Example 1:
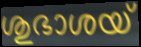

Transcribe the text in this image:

ശുഭാശയ്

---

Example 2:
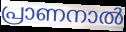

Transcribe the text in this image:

പ്രാണനാൽ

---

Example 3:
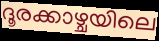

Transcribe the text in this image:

ദൂരക്കാഴ്ചയിലെ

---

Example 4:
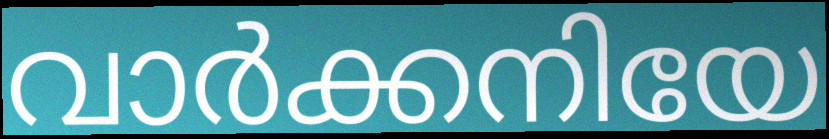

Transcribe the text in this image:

വാർക്കനിയേ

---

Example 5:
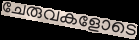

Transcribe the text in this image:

ചേരുവകളോടെ